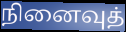
நினைவுத்